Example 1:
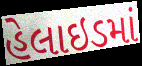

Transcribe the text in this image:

હેલાઇડમાં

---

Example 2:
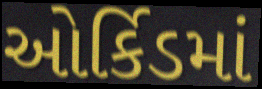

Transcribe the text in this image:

ઓર્કિડમાં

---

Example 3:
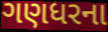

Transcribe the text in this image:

ગણધરના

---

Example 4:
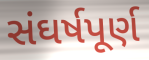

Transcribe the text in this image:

સંઘર્ષપૂર્ણ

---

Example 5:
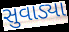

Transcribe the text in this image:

સુવાડ્યા